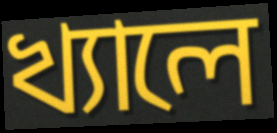
খ্যালে